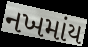
નખમાંય